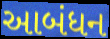
આબંધન